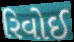
રિવોઈ